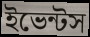
ইভেন্টস